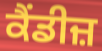
ਕੈਂਡੀਜ਼